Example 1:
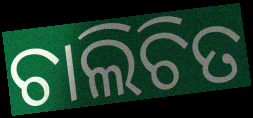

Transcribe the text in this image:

ଚାଲିଚିତ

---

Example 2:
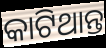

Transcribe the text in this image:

କାଟିଥାନ୍ତ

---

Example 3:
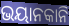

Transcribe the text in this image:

ଭୟାନକାନି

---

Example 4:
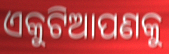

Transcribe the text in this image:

ଏକୁଟିଆପଣକୁ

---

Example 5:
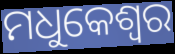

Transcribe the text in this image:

ମଧୁକେଶ୍ୱର